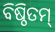
ବିଷ୍ଠିତମ୍